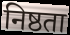
निष्ठता